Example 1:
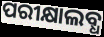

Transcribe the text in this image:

ପରୀକ୍ଷାଲବ୍ଧ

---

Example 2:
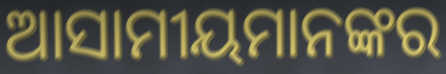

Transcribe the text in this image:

ଆସାମୀୟମାନଙ୍କର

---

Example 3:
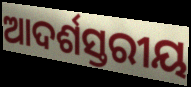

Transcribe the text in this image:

ଆଦର୍ଶସ୍ତରୀୟ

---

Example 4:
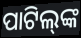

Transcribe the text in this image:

ପାଟିଲ୍‌ଙ୍କ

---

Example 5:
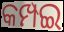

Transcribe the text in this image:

କମ୍ପଇ